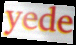
yede